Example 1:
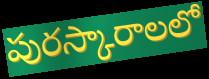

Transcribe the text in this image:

పురస్కారాలలో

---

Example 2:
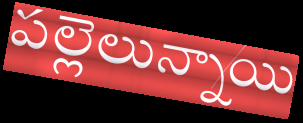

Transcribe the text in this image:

పల్లెలున్నాయి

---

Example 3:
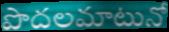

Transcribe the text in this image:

పొదలమాటునో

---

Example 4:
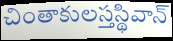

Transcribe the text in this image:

చింతాకులస్తస్థివాన్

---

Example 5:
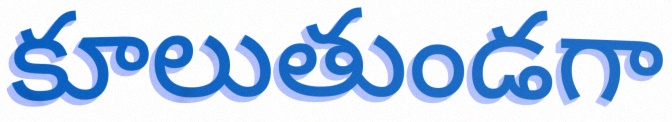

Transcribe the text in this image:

కూలుతుండగా